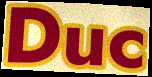
Duc